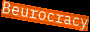
Beurocracy